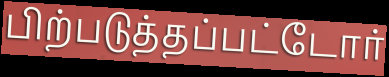
பிற்படுத்தப்பட்டோர்